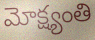
మోక్ష్యంతి